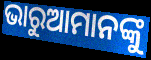
ଭାରୁଆମାନଙ୍କୁ